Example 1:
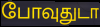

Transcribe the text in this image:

போவுதுடா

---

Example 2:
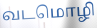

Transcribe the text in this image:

வடமொழி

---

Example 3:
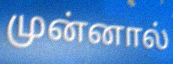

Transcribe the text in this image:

முன்னால்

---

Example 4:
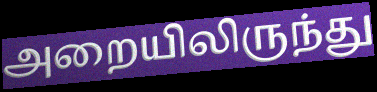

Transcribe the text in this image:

அறையிலிருந்து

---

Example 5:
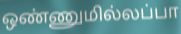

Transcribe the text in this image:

ஒண்ணுமில்லப்பா